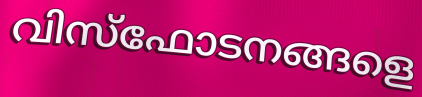
വിസ്ഫോടനങ്ങളെ